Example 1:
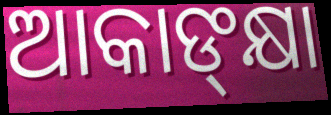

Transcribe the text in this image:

ଆକାଙ୍କ୍ଷା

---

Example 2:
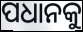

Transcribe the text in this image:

ପଧାନକୁ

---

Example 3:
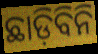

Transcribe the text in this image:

ଛାଡ଼ିବିନି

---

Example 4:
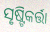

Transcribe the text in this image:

ସୃଷ୍ଟିକର୍ତ୍ତା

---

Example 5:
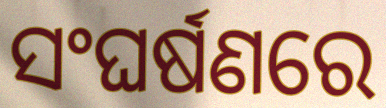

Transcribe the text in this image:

ସଂଘର୍ଷଣରେ